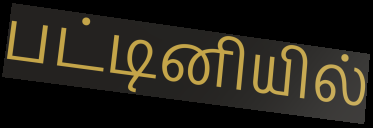
பட்டினியில்